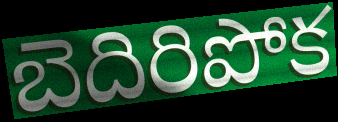
బెదిరిపోక